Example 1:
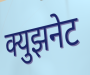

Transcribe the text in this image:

क्युझनेट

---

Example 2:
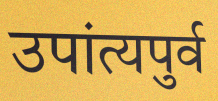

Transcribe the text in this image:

उपांत्यपुर्व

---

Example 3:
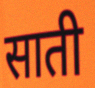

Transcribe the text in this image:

साती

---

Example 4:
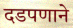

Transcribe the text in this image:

दडपणाने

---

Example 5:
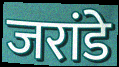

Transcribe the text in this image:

जरांडे